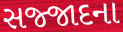
સજ્જાદના